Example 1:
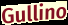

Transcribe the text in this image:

Gullino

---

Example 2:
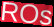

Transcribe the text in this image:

ROs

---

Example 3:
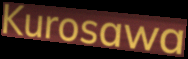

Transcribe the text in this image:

Kurosawa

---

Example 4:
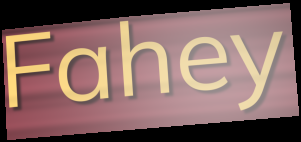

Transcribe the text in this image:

Fahey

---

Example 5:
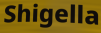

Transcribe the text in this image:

Shigella